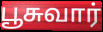
பூசுவார்